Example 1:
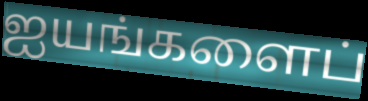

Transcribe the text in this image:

ஐயங்களைப்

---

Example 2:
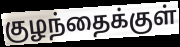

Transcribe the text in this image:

குழந்தைக்குள்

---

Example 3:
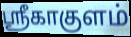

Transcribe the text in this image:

ஸ்ரீகாகுளம்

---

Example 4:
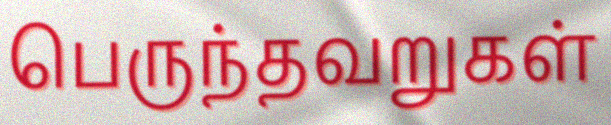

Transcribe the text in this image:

பெருந்தவறுகள்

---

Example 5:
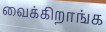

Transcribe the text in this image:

வைக்கிறாங்க